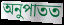
অনুপাতত